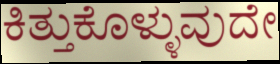
ಕಿತ್ತುಕೊಳ್ಳುವುದೇ